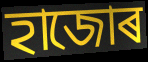
হাজোৰ